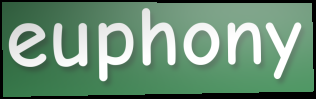
euphony